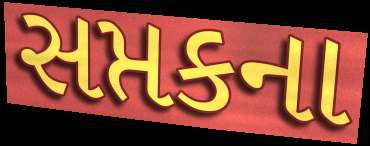
સપ્તકના